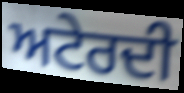
ਅਟੇਰਦੀ